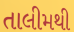
તાલીમથી